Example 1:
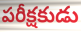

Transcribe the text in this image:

పరీక్షకుడు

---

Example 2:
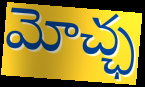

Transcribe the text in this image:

మోచ్ఛ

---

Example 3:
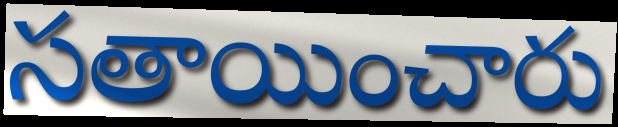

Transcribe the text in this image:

సతాయించారు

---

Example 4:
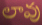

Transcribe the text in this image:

లావు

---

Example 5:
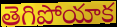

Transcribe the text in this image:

తెగిపోయాక